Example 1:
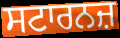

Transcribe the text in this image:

ਸਟਾਰਨਜ਼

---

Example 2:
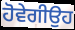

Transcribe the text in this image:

ਹੋਵੇਗੀਉਹ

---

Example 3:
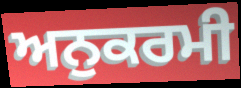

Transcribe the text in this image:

ਅਨੁਕਰਮੀ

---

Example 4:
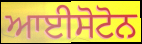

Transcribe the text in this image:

ਆਈਸੋਟੋਨ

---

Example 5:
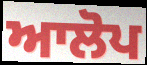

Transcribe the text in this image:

ਆਲੋਪ